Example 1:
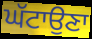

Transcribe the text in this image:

ਘੱਟਾਉਣਾ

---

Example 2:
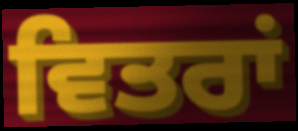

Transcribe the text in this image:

ਵਿਤਰਾਂ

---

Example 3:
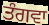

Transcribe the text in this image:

ਤੰਗਵਾ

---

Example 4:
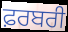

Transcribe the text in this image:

ਫ਼ਰਬਰੀ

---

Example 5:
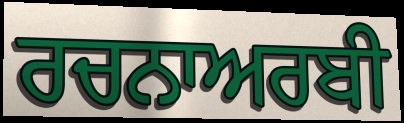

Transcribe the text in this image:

ਰਚਨਾਅਰਬੀ